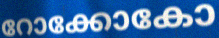
റോക്കോകോ